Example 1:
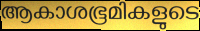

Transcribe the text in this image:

ആകാശഭൂമികളുടെ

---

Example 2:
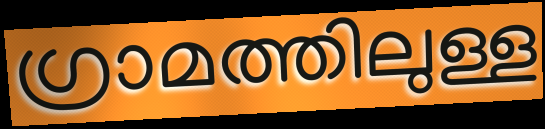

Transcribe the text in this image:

ഗ്രാമത്തിലുള്ള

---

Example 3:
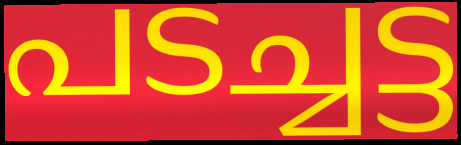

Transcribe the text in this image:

പടച്ചട്ട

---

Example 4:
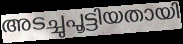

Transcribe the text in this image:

അടച്ചുപൂട്ടിയതായി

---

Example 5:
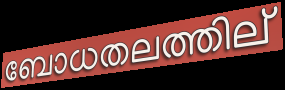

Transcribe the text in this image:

ബോധതലത്തില്